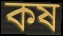
কষ